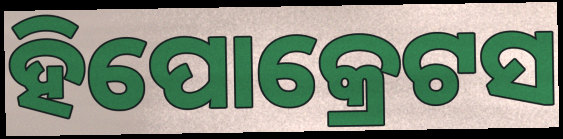
ହିପୋକ୍ରେଟସ